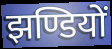
झण्डियों